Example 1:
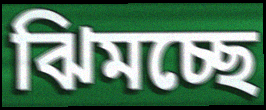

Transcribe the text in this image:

ঝিমচ্ছে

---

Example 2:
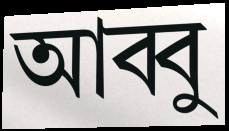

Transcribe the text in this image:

আব্বু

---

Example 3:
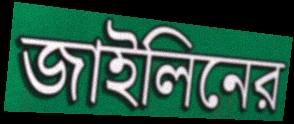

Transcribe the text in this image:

জাইলিনের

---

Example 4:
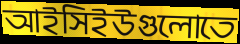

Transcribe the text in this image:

আইসিইউগুলোতে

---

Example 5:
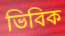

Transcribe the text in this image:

ভিবিক